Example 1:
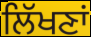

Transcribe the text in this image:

ਲਿੱਖਣਾਂ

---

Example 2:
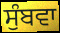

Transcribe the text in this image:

ਸੁੰਬਵਾ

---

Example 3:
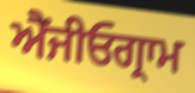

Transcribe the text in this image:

ਐਂਜੀਓਗ੍ਰਾਮ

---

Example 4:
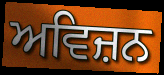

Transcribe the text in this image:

ਅਵਿਜ਼ਨ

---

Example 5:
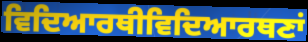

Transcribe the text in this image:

ਵਿਦਿਆਰਥੀਵਿਦਿਆਰਥਣਾਂ